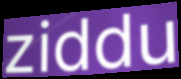
ziddu